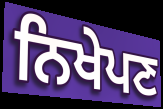
ਨਿਖੇਪਣ